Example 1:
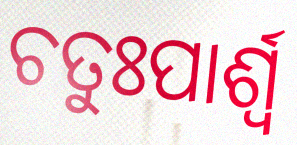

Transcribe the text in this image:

ଚତୁଃପାର୍ଶ୍ବ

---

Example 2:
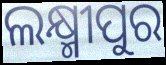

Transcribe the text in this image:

ଲକ୍ଷ୍ମୀପୁର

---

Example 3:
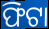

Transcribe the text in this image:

ଫିଟା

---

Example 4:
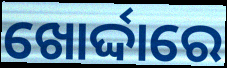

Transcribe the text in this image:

ଖୋର୍ଦ୍ଦାରେ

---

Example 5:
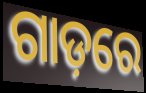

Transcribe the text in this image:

ଗାଡ଼ରେ